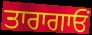
ਤਾਰਾਗਾਓਂ